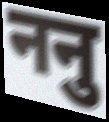
ननु